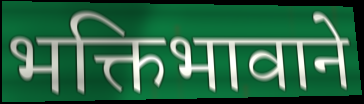
भक्तिभावाने